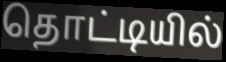
தொட்டியில்